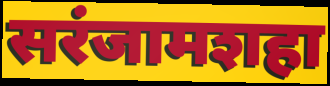
सरंजामशहा